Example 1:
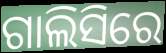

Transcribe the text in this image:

ଗାଲିସିରେ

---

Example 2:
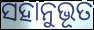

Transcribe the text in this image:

ସହାନୁଭୂତ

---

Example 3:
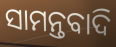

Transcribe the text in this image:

ସାମନ୍ତବାଦି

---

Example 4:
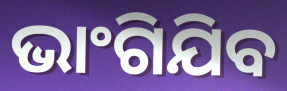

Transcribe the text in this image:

ଭାଂଗିଯିବ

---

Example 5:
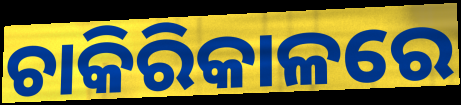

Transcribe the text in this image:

ଚାକିରିକାଳରେ